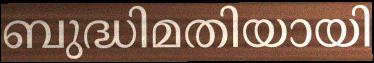
ബുദ്ധിമതിയായി